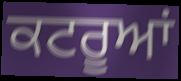
ਕਟਰੂਆਂ